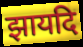
झायदि